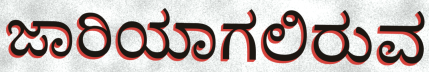
ಜಾರಿಯಾಗಲಿರುವ